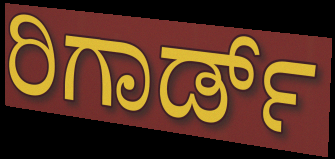
ರಿಗಾರ್ಡ್